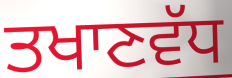
ਤਖਾਣਵੱਧ